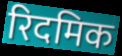
रिदमिक